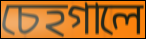
চেহগালে